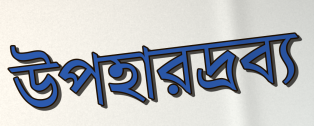
উপহারদ্রব্য